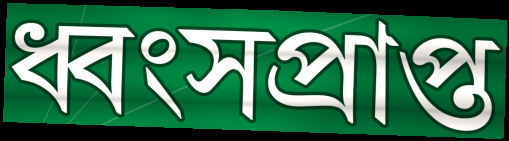
ধ্বংসপ্রাপ্ত